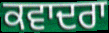
ਕਵਾਦਰਾ